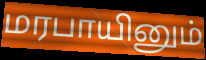
மரபாயினும்